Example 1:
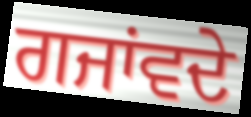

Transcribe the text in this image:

ਗਜਾਂਵਦੇ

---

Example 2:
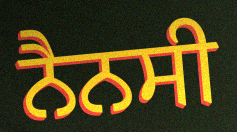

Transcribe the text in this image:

ਨੈਨਸੀ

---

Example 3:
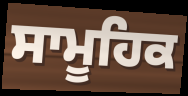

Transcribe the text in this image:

ਸਾਮੂਹਿਕ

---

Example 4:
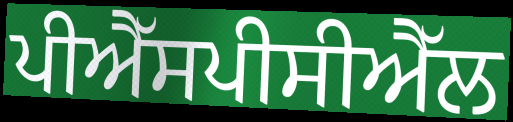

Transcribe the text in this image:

ਪੀਐੱਸਪੀਸੀਐੱਲ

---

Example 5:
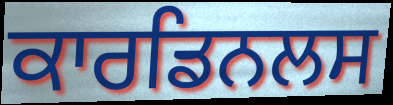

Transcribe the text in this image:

ਕਾਰਡਿਨਲਸ